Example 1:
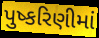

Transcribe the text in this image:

પુષ્કરિણીમાં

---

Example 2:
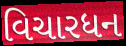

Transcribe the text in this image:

વિચારધન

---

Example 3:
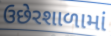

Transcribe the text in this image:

ઉછેરશાળામાં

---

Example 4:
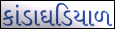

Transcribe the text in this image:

કાંડાઘડિયાળ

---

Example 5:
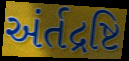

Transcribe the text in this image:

અંર્તદ્રષ્ટિ